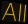
All